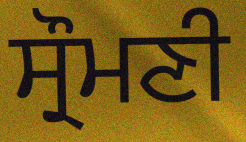
ਸ੍ਰੌਮਣੀ